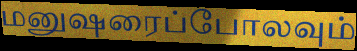
மனுஷரைப்போலவும்